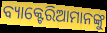
ବ୍ୟାକ୍ଟେରିଆମାନଙ୍କୁ